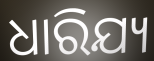
ଧାରିଯ୍ୟ